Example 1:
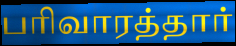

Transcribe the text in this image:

பரிவாரத்தார்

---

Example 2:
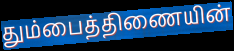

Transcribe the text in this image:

தும்பைத்திணையின்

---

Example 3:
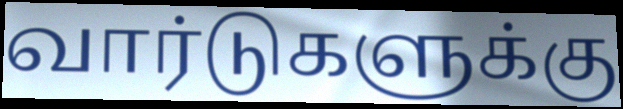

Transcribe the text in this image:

வார்டுகளுக்கு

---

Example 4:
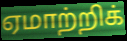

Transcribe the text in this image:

ஏமாற்றிக்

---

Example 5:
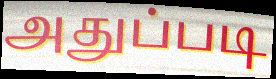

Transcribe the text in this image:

அதுப்படி